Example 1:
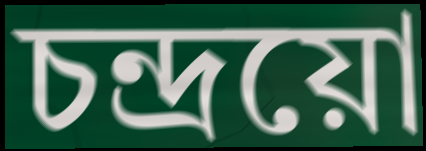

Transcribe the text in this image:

চন্দ্ৰয়ো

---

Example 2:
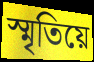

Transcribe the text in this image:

স্মৃতিয়ে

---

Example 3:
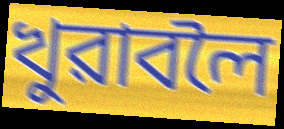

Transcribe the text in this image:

খুৱাবলৈ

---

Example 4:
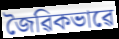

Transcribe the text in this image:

জৈৱিকভাৱে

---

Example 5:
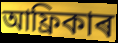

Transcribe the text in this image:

আফ্ৰিকাৰ